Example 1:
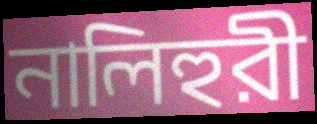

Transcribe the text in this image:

নালিহুরী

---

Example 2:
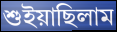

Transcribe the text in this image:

শুইয়াছিলাম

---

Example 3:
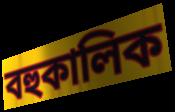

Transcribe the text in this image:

বহুকালিক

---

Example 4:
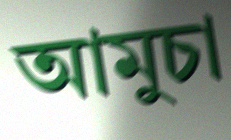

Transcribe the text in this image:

আমুচা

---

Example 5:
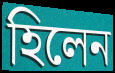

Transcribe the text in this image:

হিলেন